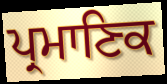
ਪ੍ਰਮਾਣਿਕ